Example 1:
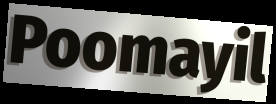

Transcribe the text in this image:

Poomayil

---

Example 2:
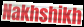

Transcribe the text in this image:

Nakhshikh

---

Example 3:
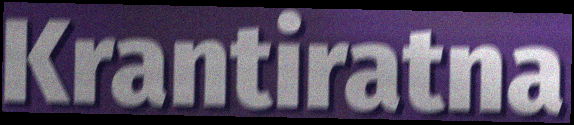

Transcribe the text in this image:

Krantiratna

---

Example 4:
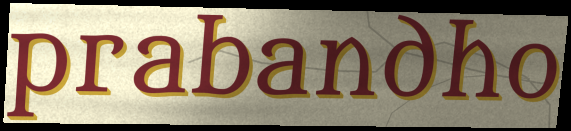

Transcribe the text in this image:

prabandho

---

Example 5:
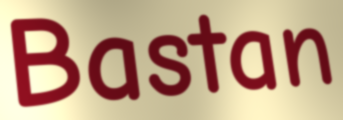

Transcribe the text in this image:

Bastan